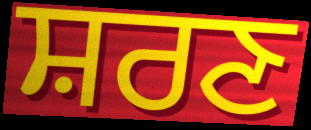
ਸ਼ਰਣ